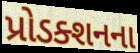
પ્રોડક્શનના